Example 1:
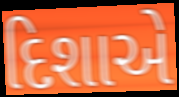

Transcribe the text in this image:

દિશાએ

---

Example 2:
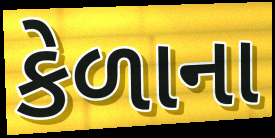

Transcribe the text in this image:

કેળાના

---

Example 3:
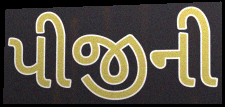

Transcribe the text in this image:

પીજીની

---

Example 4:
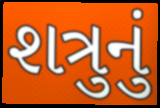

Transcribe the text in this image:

શત્રુનું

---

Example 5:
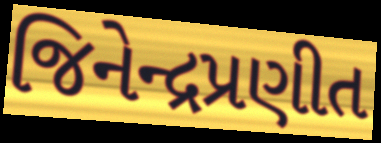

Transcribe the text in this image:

જિનેન્દ્રપ્રણીત